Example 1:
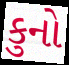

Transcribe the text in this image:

કુનો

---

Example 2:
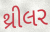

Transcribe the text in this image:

થ્રીલર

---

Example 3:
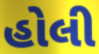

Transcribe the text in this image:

હોલી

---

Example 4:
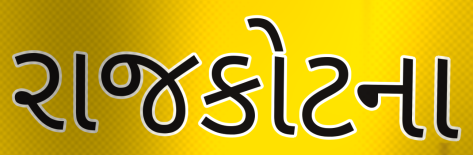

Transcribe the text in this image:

રાજકોટના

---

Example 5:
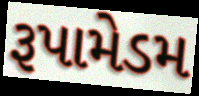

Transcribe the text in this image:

રૂપામેડમ